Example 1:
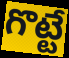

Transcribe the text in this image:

గొట్టే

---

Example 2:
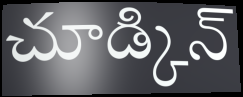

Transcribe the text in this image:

చూడ్కిన్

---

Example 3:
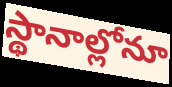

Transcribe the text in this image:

స్థానాల్లోనూ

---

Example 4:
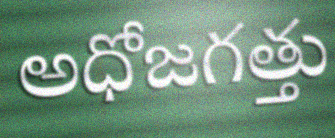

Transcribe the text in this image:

అధోజగత్తు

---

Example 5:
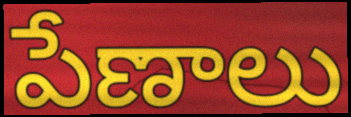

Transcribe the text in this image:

పేణాలు